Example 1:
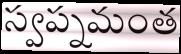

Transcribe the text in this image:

స్వప్నమంత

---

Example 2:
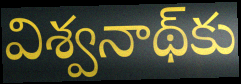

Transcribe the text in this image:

విశ్వనాథ్‌కు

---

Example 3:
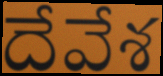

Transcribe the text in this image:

దేవేశ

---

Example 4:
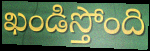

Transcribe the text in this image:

ఖండిస్తోంది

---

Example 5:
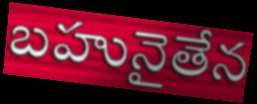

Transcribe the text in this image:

బహునైతేన